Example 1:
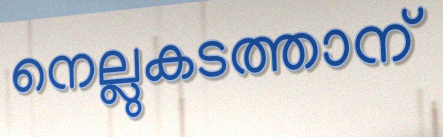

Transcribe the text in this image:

നെല്ലുകടത്താന്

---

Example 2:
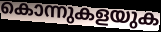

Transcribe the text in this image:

കൊന്നുകളയുക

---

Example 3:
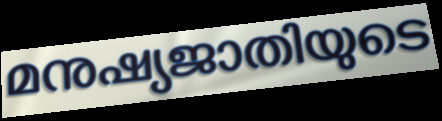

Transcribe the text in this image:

മനുഷ്യജാതിയുടെ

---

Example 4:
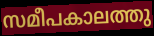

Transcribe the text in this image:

സമീപകാലത്തു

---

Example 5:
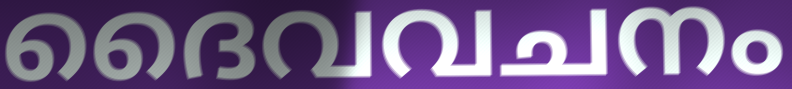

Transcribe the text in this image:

ദൈവവചനം